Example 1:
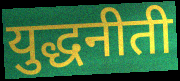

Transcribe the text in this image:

युद्धनीती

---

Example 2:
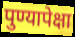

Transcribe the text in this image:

पुण्यापेक्षा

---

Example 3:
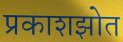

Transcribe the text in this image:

प्रकाशझोत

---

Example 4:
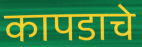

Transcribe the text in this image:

कापडाचे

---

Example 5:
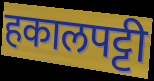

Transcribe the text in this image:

हकालपट्टी